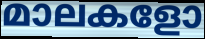
മാലകളോ